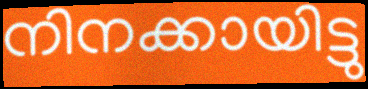
നിനക്കായിട്ടു